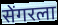
सेंगरला